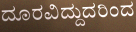
ದೂರವಿದ್ದುದರಿಂದ